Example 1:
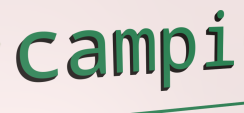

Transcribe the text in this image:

campi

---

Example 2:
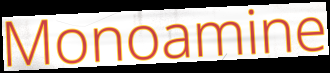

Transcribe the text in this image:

Monoamine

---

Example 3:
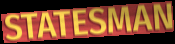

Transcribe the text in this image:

STATESMAN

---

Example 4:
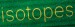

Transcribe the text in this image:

isotopes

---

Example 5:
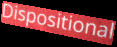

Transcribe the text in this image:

Dispositional